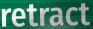
retract